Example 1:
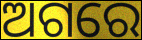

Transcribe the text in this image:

ଅଗରେ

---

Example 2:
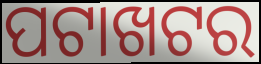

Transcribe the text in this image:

ପଟାଖଟର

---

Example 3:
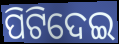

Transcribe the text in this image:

ପିଟିଦେଇ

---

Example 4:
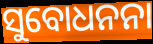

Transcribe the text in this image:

ସୁବୋଧନନା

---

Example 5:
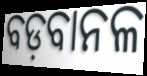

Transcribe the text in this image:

ବଡ଼ବାନଳ